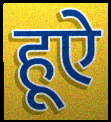
हूऐ